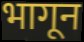
भागून